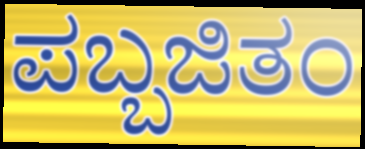
ಪಬ್ಬಜಿತಂ